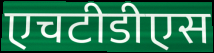
एचटीडीएस